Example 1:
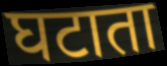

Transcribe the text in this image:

घटाता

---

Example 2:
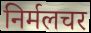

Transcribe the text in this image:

निर्मलचर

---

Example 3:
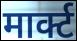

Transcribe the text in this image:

मार्क्ट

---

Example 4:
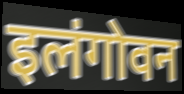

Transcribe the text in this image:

इलंगोवन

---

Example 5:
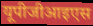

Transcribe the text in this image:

यूपीजीआइएस